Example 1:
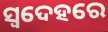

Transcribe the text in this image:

ସ୍ଵଦେହରେ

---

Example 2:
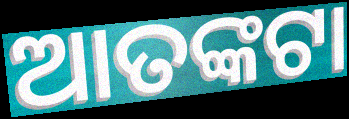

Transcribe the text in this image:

ଆତଙ୍କଟା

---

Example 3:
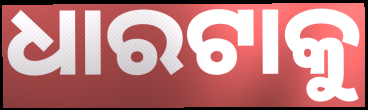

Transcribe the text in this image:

ଧାରଟାକୁ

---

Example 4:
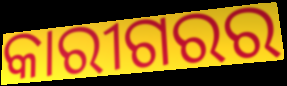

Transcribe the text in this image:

କାରୀଗରର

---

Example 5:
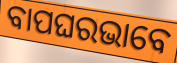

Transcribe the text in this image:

ବାପଘରଭାବେ